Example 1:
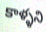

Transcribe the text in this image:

కాళ్ళని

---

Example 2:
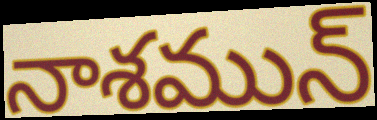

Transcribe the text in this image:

నాశమున్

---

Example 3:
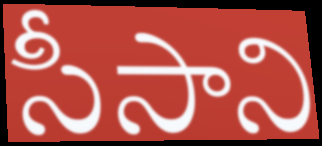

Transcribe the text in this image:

సీసాని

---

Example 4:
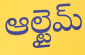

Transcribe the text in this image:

ఆల్టైమ్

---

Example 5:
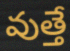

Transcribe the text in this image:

వుత్తే